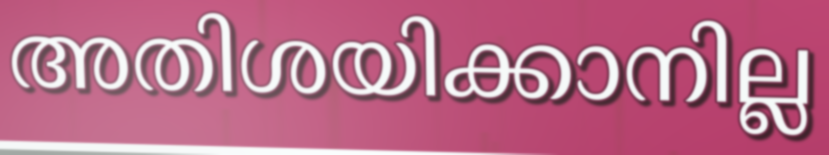
അതിശയിക്കാനില്ല